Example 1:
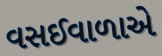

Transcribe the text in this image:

વસઈવાળાએ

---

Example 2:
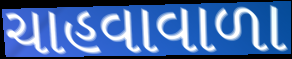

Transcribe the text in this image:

ચાહવાવાળા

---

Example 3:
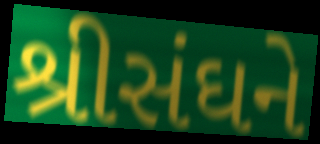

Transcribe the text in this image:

શ્રીસંઘને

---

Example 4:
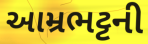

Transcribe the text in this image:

આમ્રભટ્ટની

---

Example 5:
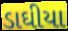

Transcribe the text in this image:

ડાઘીયા